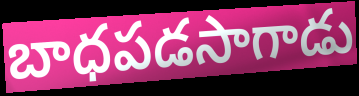
బాధపడసాగాడు